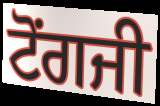
ਟੋਂਗਜੀ